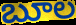
బూల